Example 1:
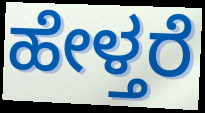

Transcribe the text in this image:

ಹೇಳ್ತರೆ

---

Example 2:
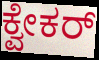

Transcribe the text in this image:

ಕ್ವೇಕರ್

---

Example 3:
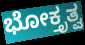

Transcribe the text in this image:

ಭೋಕ್ತೃತ್ವ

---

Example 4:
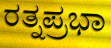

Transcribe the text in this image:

ರತ್ನಪ್ರಭಾ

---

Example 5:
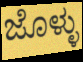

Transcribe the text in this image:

ಜೊಳ್ಳು